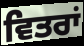
ਵਿਤਰਾਂ